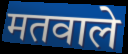
मतवाले